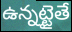
ఉన్నట్టైతే